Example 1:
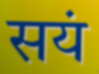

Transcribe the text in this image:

सयं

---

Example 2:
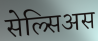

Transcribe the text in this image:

सेल्सिअस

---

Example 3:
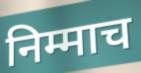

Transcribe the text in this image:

निम्माच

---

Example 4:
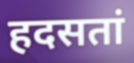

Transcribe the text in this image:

हदसतां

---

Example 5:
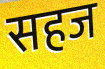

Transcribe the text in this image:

सहज